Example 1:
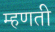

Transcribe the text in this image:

म्हणती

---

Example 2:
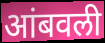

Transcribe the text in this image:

आंबवली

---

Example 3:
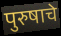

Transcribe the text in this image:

पुरुषाचे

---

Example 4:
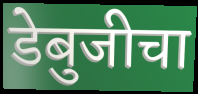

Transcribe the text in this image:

डेबुजीचा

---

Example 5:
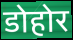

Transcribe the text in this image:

डोहोर